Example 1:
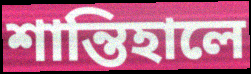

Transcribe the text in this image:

শান্তিহালে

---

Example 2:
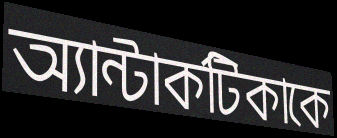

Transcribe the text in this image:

অ্যান্টার্কটিকাকে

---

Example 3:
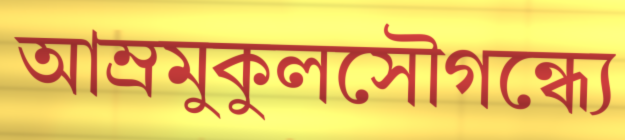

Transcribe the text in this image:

আম্রমুকুলসৌগন্ধ্যে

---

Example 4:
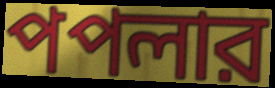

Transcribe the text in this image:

পপলার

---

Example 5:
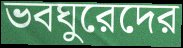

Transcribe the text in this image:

ভবঘুরেদের